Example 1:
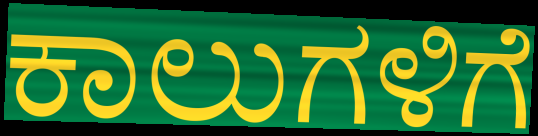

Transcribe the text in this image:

ಕಾಲುಗಳಿಗೆ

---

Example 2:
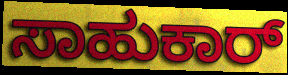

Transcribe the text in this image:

ಸಾಹುಕಾರ್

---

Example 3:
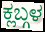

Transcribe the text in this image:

ಕ್ಲಬ್ಗಳ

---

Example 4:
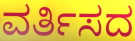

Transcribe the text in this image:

ವರ್ತಿಸದ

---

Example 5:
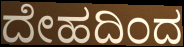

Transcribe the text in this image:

ದೇಹದಿಂದ